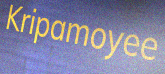
Kripamoyee